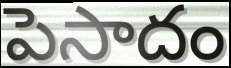
పెసాదం